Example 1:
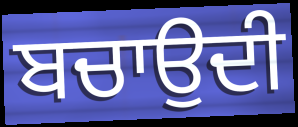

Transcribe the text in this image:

ਬਚਾਉਦੀ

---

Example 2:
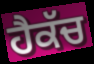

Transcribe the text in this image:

ਹੈਕੱਚ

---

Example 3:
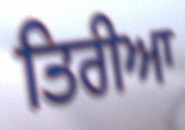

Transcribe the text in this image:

ਤਿਰੀਆ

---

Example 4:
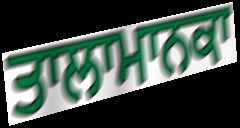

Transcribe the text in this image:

ਤਾਲਾਮਾਨਕਾ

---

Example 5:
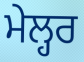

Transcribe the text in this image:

ਮੇਲ੍ਹਰ